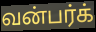
வன்பர்க்